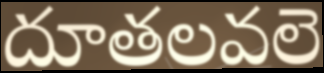
దూతలవలె